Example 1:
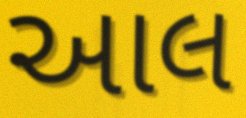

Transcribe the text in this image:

આલ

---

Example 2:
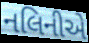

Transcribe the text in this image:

નલિનીએ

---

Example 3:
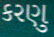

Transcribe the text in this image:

કરણુ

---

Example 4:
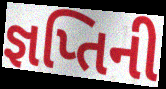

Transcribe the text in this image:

જ્ઞપ્તિની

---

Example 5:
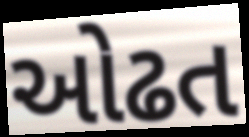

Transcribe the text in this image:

ઓઢત